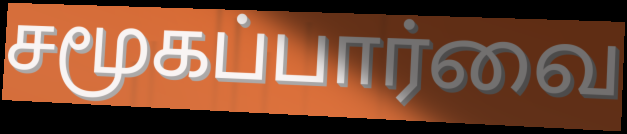
சமூகப்பார்வை